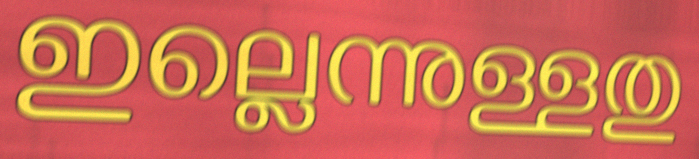
ഇല്ലെന്നുള്ളതു